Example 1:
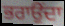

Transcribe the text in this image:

ਭਰਾਉਂਦਾ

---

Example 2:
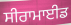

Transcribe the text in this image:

ਸੀਰਾਮਾਈਡ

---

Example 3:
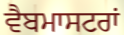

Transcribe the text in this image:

ਵੈਬਮਾਸਟਰਾਂ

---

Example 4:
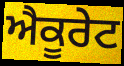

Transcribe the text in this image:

ਐਕੂਰੇਟ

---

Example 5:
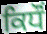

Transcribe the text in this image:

ਕਿਧੌਂ